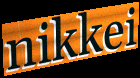
nikkei